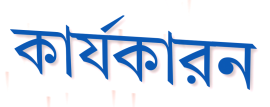
কার্যকারন